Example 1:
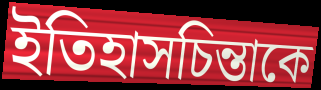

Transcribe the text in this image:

ইতিহাসচিন্তাকে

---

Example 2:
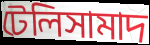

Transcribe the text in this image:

টেলিসামাদ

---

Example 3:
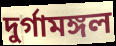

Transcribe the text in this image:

দুর্গামঙ্গল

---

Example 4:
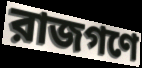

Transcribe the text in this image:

রাজগণে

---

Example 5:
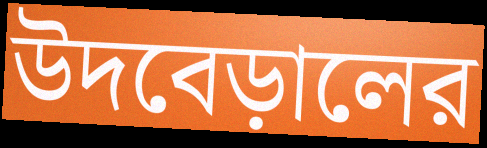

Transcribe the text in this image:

উদবেড়ালের